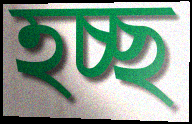
হচ্ছ